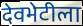
देवभेटीला